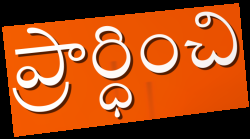
ప్రార్ధించి